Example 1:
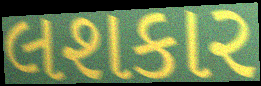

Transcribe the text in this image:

લશકાર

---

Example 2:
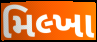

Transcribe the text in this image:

મિલ્ખા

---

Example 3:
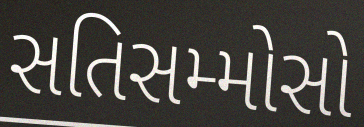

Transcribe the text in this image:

સતિસમ્મોસો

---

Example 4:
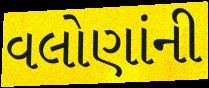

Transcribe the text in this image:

વલોણાંની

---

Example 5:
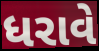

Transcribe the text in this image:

ધરાવે